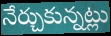
నేర్చుకున్నట్లు